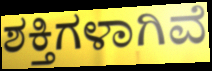
ಶಕ್ತಿಗಳಾಗಿವೆ